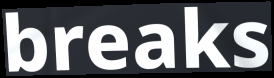
breaks